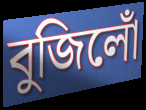
বুজিলোঁ